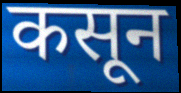
कसून